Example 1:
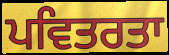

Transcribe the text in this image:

ਪਵਿਤਰਤਾ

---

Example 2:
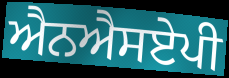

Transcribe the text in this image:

ਐਨਐਸਏਪੀ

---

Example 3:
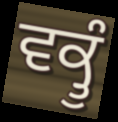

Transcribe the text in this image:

ਵਕ੍ਤੁੰ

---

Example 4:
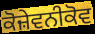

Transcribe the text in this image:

ਕੋਜ਼ੇਵਨੀਕੋਵ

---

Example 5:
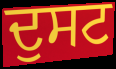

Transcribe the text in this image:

ਦੁਸਟ